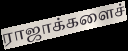
ராஜாக்களைச்